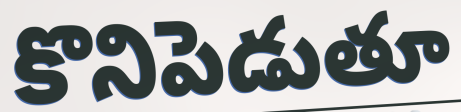
కొనిపెడుతూ